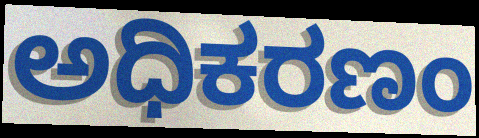
ಅಧಿಕರಣಂ